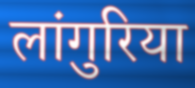
लांगुरिया